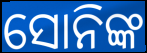
ସୋନିଙ୍କ